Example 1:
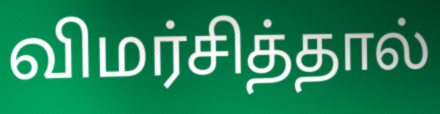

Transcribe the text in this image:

விமர்சித்தால்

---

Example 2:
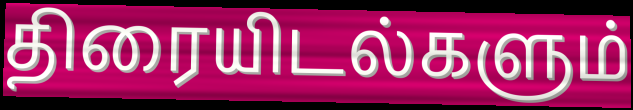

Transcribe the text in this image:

திரையிடல்களும்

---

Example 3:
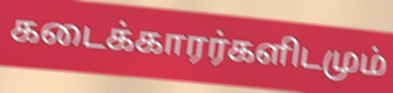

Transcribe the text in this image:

கடைக்காரர்களிடமும்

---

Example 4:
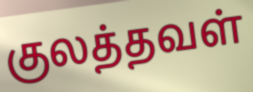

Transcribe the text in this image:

குலத்தவள்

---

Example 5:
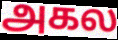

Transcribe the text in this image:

அகல